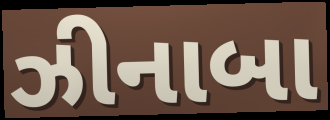
ઝીનાબા